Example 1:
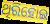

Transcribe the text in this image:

ଥିରିହୋଇ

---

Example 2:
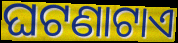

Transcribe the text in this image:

ଘଟଣାଟାଏ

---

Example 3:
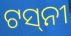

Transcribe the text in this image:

ଟସ୍‌ନୀ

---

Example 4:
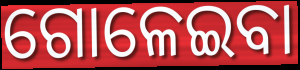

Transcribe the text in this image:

ଗୋଳେଇବା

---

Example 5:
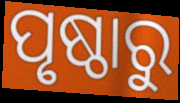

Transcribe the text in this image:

ପୃଷ୍ଠାରୁ